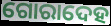
ଗୋରାଦେହ